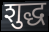
शुद्ध